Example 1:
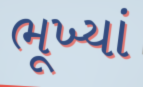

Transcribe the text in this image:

ભૂખ્યાં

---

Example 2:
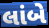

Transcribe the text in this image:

લાંબે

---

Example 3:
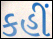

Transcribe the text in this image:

કહીં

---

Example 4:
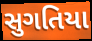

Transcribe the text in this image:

સુગતિયા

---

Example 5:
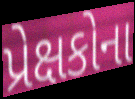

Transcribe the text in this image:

પ્રેક્ષકોના